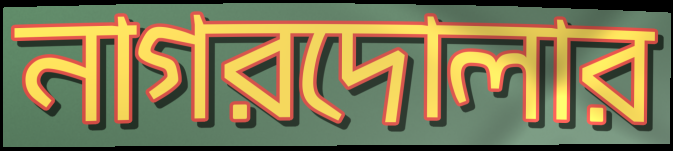
নাগরদোলার